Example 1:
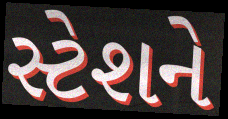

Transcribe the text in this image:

સ્ટેશને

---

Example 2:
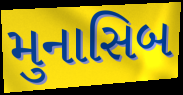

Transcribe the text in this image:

મુનાસિબ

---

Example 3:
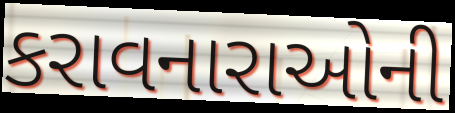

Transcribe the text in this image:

કરાવનારાઓની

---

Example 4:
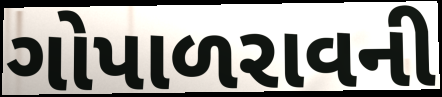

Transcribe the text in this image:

ગોપાળરાવની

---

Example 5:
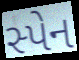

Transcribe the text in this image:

સ્પેન